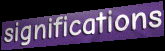
significations